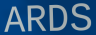
ARDS